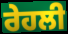
ਰੇਹਲੀ